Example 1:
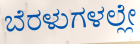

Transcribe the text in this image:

ಬೆರಳುಗಳಲ್ಲೇ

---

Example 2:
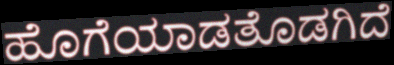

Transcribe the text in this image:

ಹೊಗೆಯಾಡತೊಡಗಿದೆ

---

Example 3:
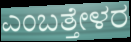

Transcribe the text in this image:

ಎಂಬತ್ತೇಳರ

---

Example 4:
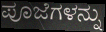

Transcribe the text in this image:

ಪೂಜೆಗಳನ್ನು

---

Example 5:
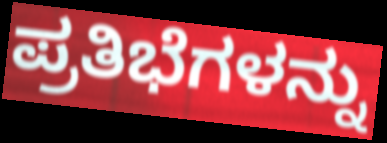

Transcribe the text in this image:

ಪ್ರತಿಭೆಗಳನ್ನು